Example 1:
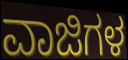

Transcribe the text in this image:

ವಾಜಿಗಳ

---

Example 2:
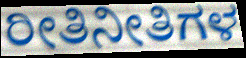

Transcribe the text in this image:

ರೀತಿನೀತಿಗಳ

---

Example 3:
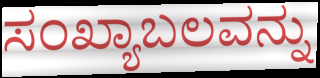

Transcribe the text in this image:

ಸಂಖ್ಯಾಬಲವನ್ನು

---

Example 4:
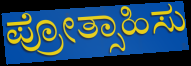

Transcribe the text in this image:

ಪ್ರೋತ್ಸಾಹಿಸು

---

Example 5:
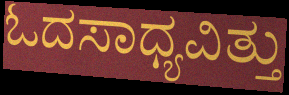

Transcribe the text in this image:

ಓದಸಾಧ್ಯವಿತ್ತು